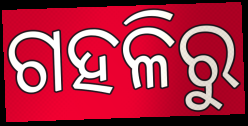
ଗହଳିରୁ